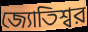
জ্যোতিশ্বর